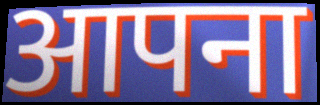
आपना